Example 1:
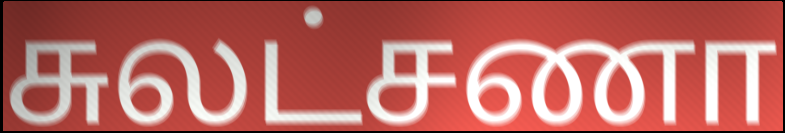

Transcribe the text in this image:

சுலட்சணா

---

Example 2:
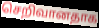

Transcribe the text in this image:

செறிவானதாக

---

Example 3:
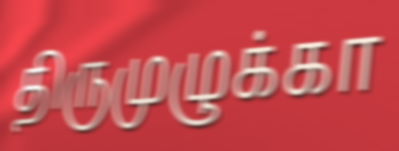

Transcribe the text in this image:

திருமுழுக்கா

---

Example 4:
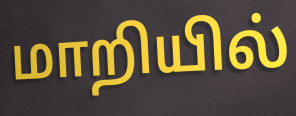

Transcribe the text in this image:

மாறியில்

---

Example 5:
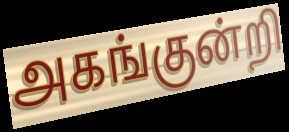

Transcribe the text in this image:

அகங்குன்றி